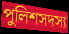
পুলিশসদস্য